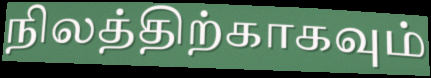
நிலத்திற்காகவும்